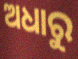
ଅଧାରୁ